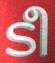
ടീ